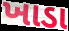
ખાડા